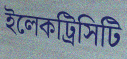
ইলেকট্রিসিটি